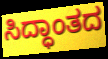
ಸಿದ್ಧಾಂತದ